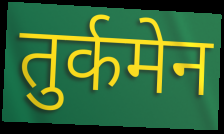
तुर्कमेन